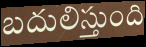
బదులిస్తుంది